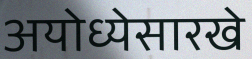
अयोध्येसारखे